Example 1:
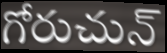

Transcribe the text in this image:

గోరుచున్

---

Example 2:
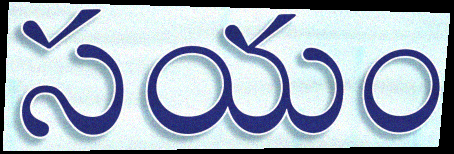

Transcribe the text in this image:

సయం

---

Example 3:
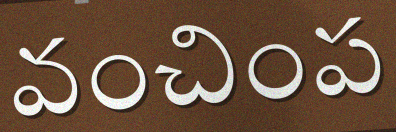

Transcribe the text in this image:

వంచింప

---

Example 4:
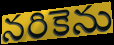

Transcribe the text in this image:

నరికెను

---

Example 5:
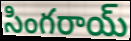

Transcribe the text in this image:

సింగరాయ్